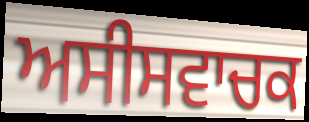
ਅਸੀਸਵਾਚਕ